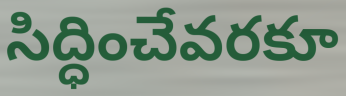
సిద్ధించేవరకూ